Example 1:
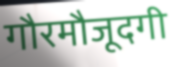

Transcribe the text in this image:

गौरमौजूदगी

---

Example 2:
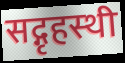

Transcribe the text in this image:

सद्गृहस्थी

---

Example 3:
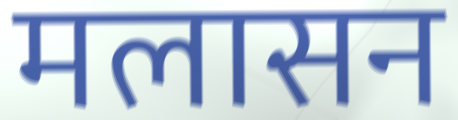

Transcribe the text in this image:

मलासन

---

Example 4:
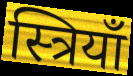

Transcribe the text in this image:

स्त्रियाँ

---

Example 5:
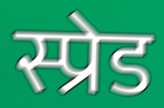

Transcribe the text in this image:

स्‍प्रेड